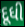
દૂધી